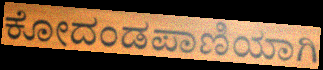
ಕೋದಂಡಪಾಣಿಯಾಗಿ